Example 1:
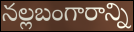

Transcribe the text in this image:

నల్లబంగారాన్ని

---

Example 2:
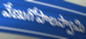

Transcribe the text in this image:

వేణుగోపాలస్వామి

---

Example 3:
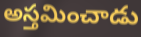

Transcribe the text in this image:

అస్తమించాడు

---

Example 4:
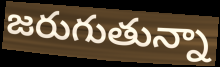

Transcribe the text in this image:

జరుగుతున్నా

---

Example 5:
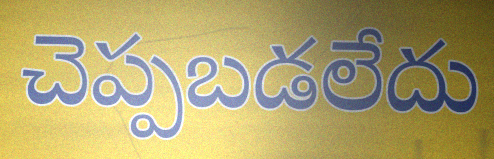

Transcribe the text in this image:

చెప్పబడలేదు